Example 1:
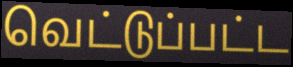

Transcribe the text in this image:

வெட்டுப்பட்ட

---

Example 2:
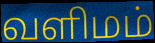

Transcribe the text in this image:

வளிமம்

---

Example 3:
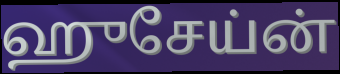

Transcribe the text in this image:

ஹுசேய்ன்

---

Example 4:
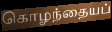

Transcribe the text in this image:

கொழந்தையப்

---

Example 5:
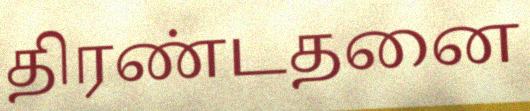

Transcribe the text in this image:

திரண்டதனை